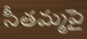
సీతమ్మపై